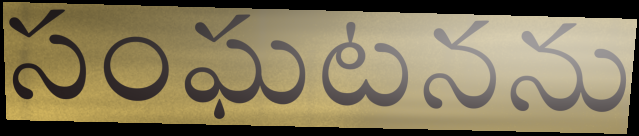
సంఘటనను